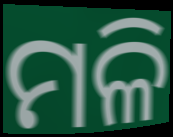
ମଳି